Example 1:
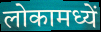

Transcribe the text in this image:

लोकामध्यें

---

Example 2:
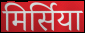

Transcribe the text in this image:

मिर्सिया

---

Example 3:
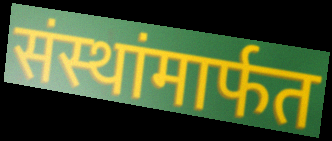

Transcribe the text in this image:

संस्थांमार्फत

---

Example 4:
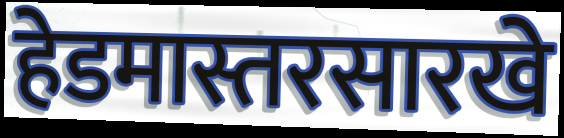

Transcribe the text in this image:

हेडमास्तरसारखे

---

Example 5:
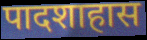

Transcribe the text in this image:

पादशाहास